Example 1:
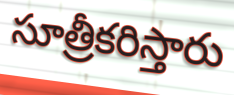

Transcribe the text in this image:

సూత్రీకరిస్తారు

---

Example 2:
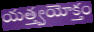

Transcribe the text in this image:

యత్త్వయోక్తం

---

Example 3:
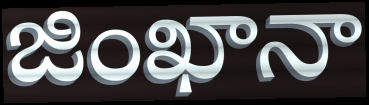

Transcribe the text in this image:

జింఖానా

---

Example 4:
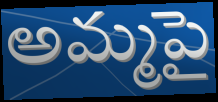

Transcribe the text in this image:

అమ్మపై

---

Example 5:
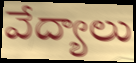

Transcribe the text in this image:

వేద్యాలు